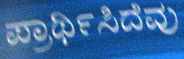
ಪ್ರಾರ್ಥಿಸಿದೆವು